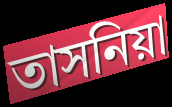
তাসনিয়া